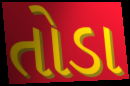
તોડા